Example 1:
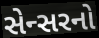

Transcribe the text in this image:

સેન્સરનો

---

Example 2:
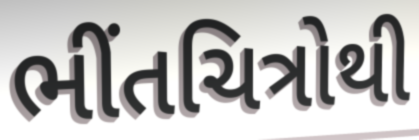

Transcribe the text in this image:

ભીંતચિત્રોથી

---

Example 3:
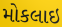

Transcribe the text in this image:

મોકલાઇ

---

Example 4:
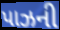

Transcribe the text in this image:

પાઝની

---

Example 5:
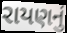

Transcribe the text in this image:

રાયણનું